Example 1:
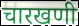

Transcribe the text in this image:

चारखणी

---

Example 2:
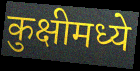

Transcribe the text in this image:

कुक्षीमध्ये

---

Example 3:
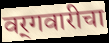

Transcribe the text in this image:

वर्गवारीचा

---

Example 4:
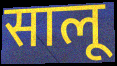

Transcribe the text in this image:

सालू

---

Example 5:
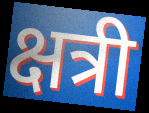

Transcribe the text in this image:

क्षत्री